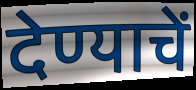
देण्याचें